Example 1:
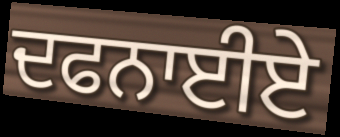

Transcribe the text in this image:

ਦਫਨਾਈਏ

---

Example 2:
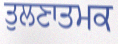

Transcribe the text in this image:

ਤੁਲਣਾਤਮਕ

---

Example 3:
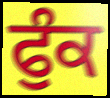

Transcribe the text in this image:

ਫੁੰਕ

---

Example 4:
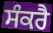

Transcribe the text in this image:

ਸੰਕਰੈ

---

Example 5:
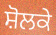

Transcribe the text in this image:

ਸ਼ੋਲਕੇ